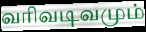
வரிவடிவமும்